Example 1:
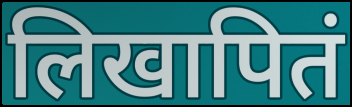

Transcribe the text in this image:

लिखापितं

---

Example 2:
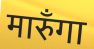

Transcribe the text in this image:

मारुँगा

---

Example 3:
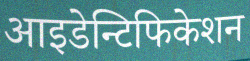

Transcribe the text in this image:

आइडेन्टिफिकेशन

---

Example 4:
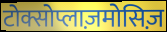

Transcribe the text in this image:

टोक्सोप्लाज़मोसिज़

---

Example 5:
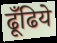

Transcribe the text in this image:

ढूँढिये